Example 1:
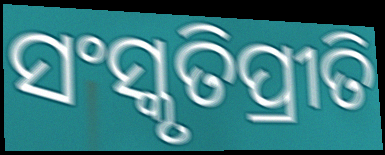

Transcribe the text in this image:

ସଂସ୍କୃତିପ୍ରୀତି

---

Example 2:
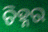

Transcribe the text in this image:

ଚିହ୍ନର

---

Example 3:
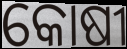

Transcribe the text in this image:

କୋଷୀ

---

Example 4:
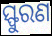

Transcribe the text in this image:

ସ୍ଫୁରଣ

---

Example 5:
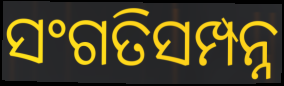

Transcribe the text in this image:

ସଂଗତିସମ୍ପନ୍ନ